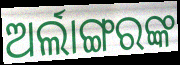
ଅର୍ଲାଙ୍ଗରଙ୍କ